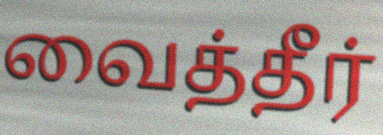
வைத்தீர்